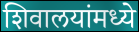
शिवालयांमध्ये